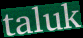
taluk